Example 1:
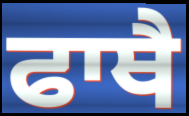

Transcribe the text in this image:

ਫਾਥੈ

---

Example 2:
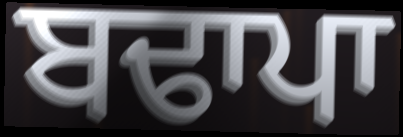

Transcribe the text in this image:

ਬਢਾਪਾ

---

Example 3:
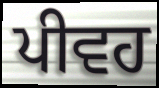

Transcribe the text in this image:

ਪੀਵਹ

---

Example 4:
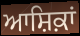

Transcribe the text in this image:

ਆਸ਼ਿਕ਼ਾਂ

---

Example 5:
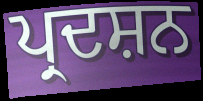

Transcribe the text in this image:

ਪ੍ਰਦਸ਼ਨ